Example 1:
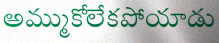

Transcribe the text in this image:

అమ్ముకోలేకపోయాడు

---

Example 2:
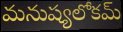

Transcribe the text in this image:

మనుష్యలోకమ్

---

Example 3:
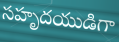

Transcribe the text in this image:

సహృదయుడిగా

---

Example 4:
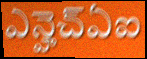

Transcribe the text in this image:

ఎన్హెచ్ఏఐ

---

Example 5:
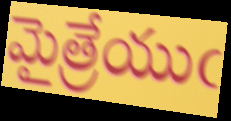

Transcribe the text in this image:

మైత్రేయుఁ